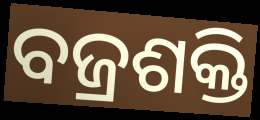
ବଜ୍ରଶକ୍ତି